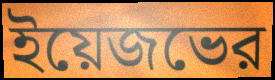
ইয়েজভের